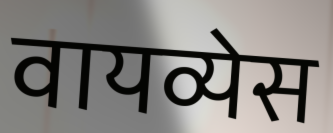
वायव्येस